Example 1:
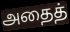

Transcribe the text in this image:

அதைத்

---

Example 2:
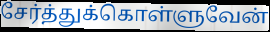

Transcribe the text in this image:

சேர்த்துக்கொள்ளுவேன்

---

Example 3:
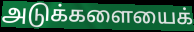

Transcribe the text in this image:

அடுக்களையைக்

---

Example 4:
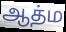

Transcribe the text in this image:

ஆத்ம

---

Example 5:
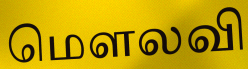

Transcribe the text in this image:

மௌலவி